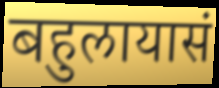
बहुलायासं